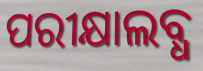
ପରୀକ୍ଷାଲବ୍ଧ